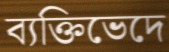
ব্যক্তিভেদে